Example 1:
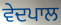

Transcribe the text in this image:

ਵੇਦਪਾਲ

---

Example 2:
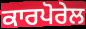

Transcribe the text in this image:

ਕਾਰਪੋਰੇਲ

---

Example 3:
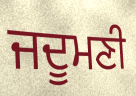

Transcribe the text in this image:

ਜਦੂਮਣੀ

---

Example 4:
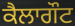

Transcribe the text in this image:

ਕੈਲਾਗੌਟ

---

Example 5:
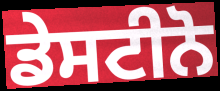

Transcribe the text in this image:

ਡੇਸਟੀਨੋ